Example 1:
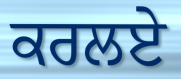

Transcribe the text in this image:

ਕਰਲਏ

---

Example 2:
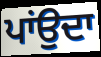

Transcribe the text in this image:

ਪਾਂਉਦਾ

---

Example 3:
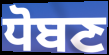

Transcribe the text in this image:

ਧੋਬਣ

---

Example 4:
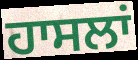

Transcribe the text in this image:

ਹਾਸਲਾਂ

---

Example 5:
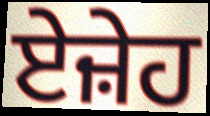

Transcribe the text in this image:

ਏਜ਼ੇਹ